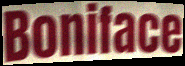
Boniface